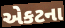
એકટના